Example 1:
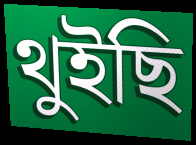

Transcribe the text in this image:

থুইছি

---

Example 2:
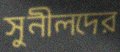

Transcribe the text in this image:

সুনীলদের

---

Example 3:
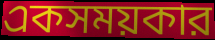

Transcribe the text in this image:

একসময়কার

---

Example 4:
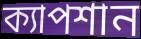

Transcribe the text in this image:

ক্যাপশান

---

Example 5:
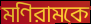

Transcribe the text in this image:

মণিরামকে